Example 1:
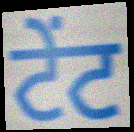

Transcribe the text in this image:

ਟੇਂਟ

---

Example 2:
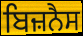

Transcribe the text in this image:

ਬਿਜ਼ਨੈਸ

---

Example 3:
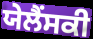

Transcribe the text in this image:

ਯੇਲੈਂਸਕੀ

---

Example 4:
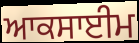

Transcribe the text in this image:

ਆਕਸਾਈਮ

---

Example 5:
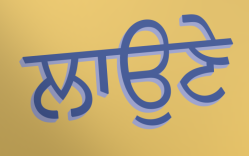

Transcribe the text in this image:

ਲਾਉਣੇ